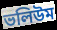
ভলিউম